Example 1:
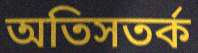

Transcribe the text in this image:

অতিসতর্ক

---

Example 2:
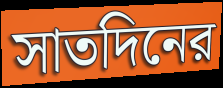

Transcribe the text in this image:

সাতদিনের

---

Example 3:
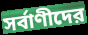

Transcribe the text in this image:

সর্বাণীদের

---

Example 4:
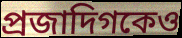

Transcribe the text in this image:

প্রজাদিগকেও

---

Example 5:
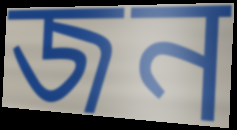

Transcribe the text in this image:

জন